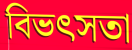
বিভৎসতা